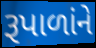
રૂપાળાંને